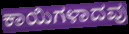
ಕಾಯಿಗಳಾದವು